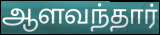
ஆளவந்தார்